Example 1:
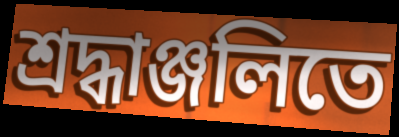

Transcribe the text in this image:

শ্রদ্ধাঞ্জলিতে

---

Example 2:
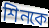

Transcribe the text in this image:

শিনকে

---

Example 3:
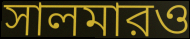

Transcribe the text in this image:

সালমারও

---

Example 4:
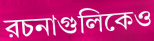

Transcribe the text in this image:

রচনাগুলিকেও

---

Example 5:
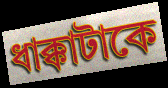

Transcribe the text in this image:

ধাক্কাটাকে